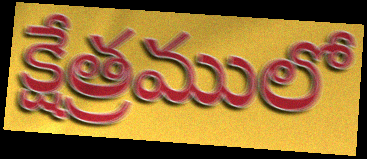
క్షేత్రములో